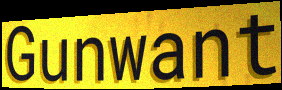
Gunwant